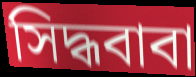
সিদ্ধবাবা